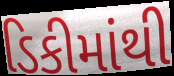
ડિકીમાંથી